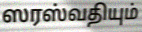
ஸரஸ்வதியும்